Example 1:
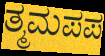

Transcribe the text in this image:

ತ್ಮಮಪಪ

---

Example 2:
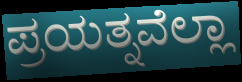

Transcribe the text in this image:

ಪ್ರಯತ್ನವೆಲ್ಲಾ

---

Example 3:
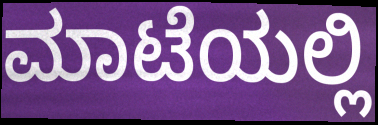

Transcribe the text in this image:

ಮಾಟೆಯಲ್ಲಿ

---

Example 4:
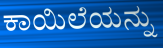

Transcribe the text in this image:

ಕಾಯಿಲೆಯನ್ನು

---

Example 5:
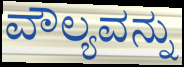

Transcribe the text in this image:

ವೌಲ್ಯವನ್ನು